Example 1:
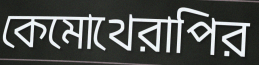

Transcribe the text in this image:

কেমোথেরাপির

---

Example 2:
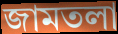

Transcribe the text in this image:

জামতলা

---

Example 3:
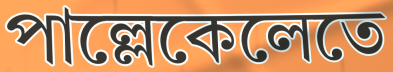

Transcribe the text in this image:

পাল্লেকেলেতে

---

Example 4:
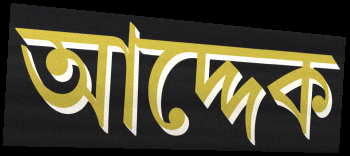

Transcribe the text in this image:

আদ্দেক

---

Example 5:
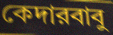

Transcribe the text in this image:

কেদারবাবু